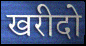
खरीदो